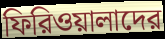
ফিরিওয়ালাদের